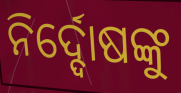
ନିର୍ଦ୍ଦୋଷଙ୍କୁ